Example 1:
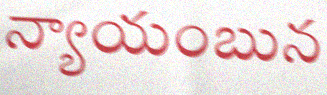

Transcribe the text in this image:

న్యాయంబున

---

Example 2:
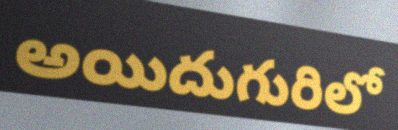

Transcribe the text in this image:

అయిదుగురిలో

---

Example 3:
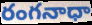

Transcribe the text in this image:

రంగనాధా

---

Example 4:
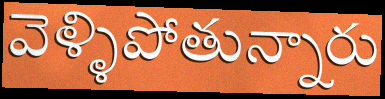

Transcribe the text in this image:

వెళ్ళిపోతున్నారు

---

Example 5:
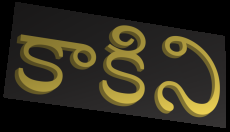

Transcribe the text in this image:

కాకిని